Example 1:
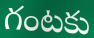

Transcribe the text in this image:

గంటకు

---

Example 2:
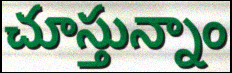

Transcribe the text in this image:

చూస్తున్నాం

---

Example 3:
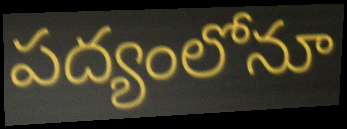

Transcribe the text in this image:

పద్యంలోనూ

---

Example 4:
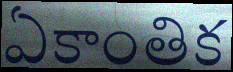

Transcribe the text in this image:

ఏకాంతిక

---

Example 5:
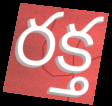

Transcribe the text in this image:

రక్త